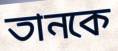
তানকে